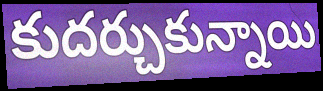
కుదర్చుకున్నాయి